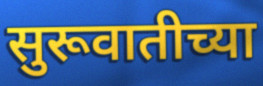
सुरूवातीच्या